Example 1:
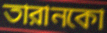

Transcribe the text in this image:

তারানকো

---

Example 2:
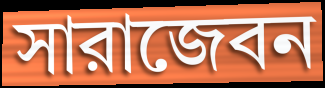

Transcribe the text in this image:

সারাজেবন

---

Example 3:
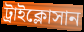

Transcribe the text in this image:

ট্রাইক্লোসান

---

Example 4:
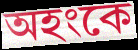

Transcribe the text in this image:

অহংকে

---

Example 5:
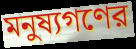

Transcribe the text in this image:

মনুষ্যগণের